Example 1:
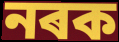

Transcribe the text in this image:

নৰক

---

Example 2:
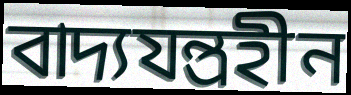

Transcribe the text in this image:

বাদ্যযন্ত্ৰহীন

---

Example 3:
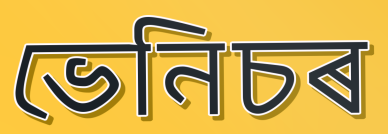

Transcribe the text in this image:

ভেনিচৰ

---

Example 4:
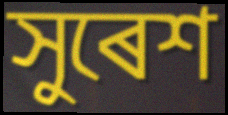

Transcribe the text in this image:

সুৰেশ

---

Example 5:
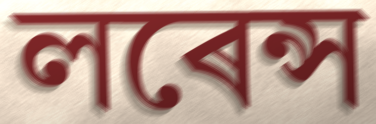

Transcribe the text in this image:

লৰেন্স